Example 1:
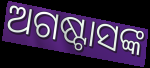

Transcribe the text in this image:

ଅଗଷ୍ଟାସଙ୍କ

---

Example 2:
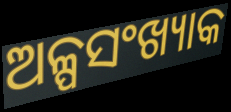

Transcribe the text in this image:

ଅଳ୍ପସଂଖ୍ୟାକ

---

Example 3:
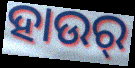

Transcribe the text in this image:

ହାଉର୍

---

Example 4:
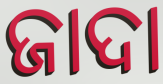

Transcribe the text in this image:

ଜାଦା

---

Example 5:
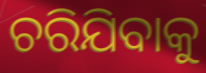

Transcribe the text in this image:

ଚରିଯିବାକୁ